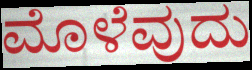
ಮೊಳೆವುದು